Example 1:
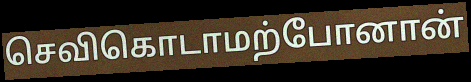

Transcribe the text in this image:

செவிகொடாமற்போனான்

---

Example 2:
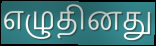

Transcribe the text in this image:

எழுதினது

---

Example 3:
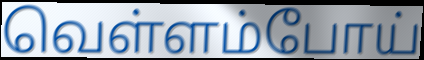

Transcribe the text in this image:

வெள்ளம்போய்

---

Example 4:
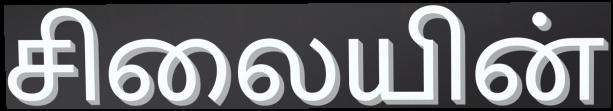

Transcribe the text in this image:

சிலையின்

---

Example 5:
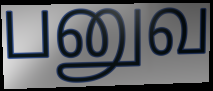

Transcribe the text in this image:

பனுவ